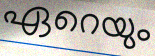
ഏറെയും